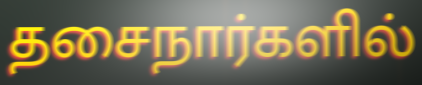
தசைநார்களில்